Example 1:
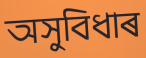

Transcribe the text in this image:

অসুবিধাৰ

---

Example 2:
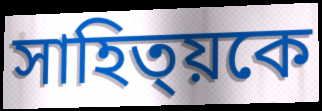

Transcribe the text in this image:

সাহিত্য়কে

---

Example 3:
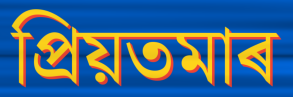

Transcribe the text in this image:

প্ৰিয়তমাৰ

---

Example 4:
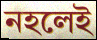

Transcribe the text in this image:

নহলেই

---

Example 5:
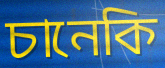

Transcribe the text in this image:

চানেকি